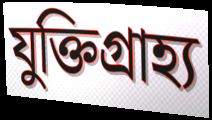
যুক্তিগ্রাহ্য